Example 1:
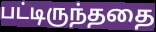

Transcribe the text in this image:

பட்டிருந்ததை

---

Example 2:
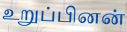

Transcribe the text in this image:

உறுப்பினன்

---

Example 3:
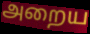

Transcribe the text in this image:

அறைய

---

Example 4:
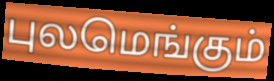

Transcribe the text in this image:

புலமெங்கும்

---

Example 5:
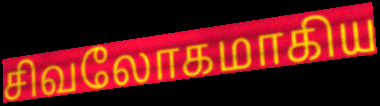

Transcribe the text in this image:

சிவலோகமாகிய